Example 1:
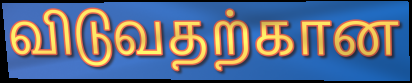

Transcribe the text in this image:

விடுவதற்கான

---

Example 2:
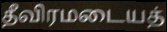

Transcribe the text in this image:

தீவிரமடையத்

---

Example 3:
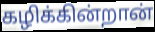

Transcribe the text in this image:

கழிக்கின்றான்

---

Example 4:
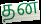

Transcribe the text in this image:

தன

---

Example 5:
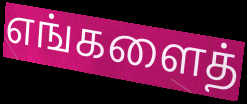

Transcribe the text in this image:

எங்களைத்